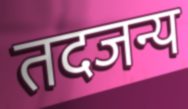
तदजन्य